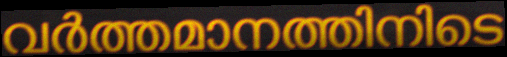
വർത്തമാനത്തിനിടെ